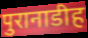
पुरानाडीह